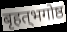
बृहत्‌भगोष्ठ